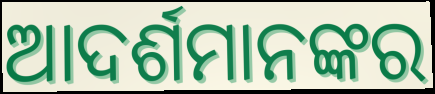
ଆଦର୍ଶମାନଙ୍କର